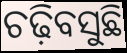
ଚଢ଼ିବସୁଛି